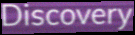
Discovery